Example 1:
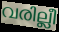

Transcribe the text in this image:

വരില്ലീ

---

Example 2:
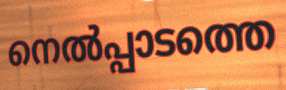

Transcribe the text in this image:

നെൽപ്പാടത്തെ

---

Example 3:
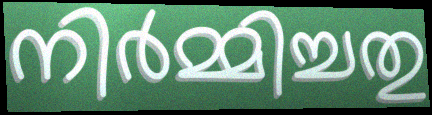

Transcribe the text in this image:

നിർമ്മിച്ചതു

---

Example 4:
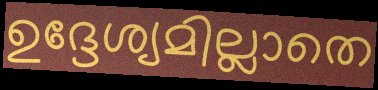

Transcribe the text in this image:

ഉദ്ദേശ്യമില്ലാതെ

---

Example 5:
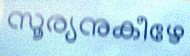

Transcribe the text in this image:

സൂര്യനുകീഴേ